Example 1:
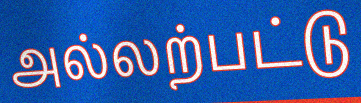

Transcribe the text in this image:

அல்லற்பட்டு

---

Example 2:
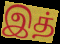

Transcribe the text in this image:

இத்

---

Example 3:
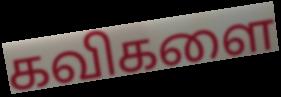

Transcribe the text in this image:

கவிகளை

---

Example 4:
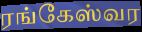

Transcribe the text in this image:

ரங்கேஸ்வர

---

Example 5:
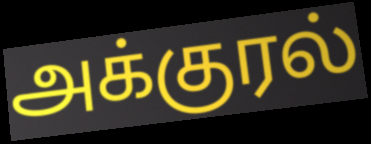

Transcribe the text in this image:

அக்குரல்